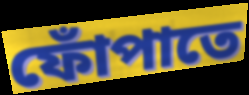
ফোঁপাতে